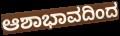
ಆಶಾಭಾವದಿಂದ